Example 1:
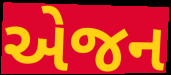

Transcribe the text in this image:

એજન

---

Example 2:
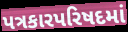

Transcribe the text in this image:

પત્રકારપરિષદમાં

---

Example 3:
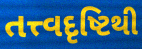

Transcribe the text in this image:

તત્ત્વદૃષ્ટિથી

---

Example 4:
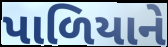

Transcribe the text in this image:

પાળિયાને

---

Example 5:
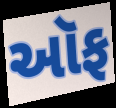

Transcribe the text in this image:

ઑફ